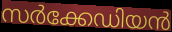
സർക്കേഡിയൻ